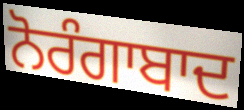
ਨੋਰੰਗਾਬਾਦ